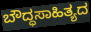
ಬೌದ್ಧಸಾಹಿತ್ಯದ